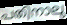
പതിനാലു